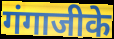
गंगाजीके